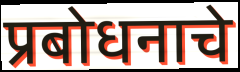
प्रबोधनाचे